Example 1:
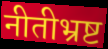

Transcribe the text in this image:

नीतीभ्रष्ट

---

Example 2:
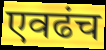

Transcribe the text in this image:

एवढंच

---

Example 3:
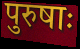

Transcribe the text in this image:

पुरुषाः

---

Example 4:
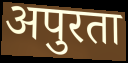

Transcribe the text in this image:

अपुरता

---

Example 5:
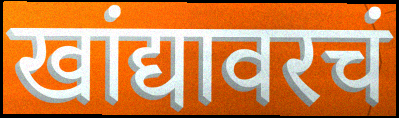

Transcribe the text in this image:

खांद्यावरचं